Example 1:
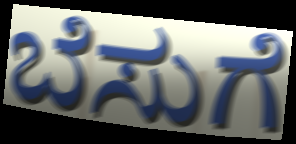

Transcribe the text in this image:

ಬೆಸುಗೆ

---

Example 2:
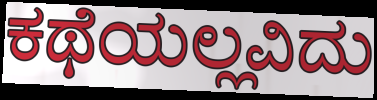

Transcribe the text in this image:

ಕಥೆಯಲ್ಲವಿದು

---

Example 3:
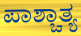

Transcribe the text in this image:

ಪಾಶ್ಚಾತ್ಯ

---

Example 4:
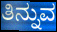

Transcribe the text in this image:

ತಿನ್ನುವ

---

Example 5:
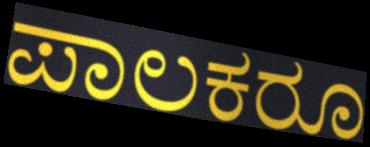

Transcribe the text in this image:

ಪಾಲಕರೂ